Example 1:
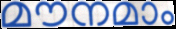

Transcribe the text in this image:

മൗനമാം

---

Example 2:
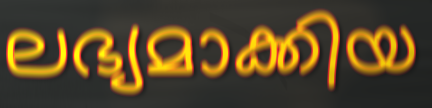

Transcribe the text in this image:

ലഭ്യമാക്കിയ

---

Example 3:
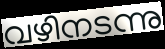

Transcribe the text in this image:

വഴിനടന്നു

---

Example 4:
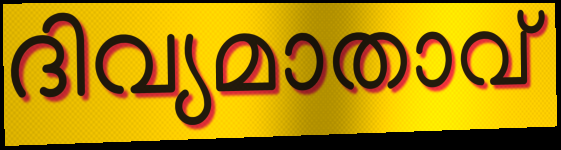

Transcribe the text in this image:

ദിവ്യമാതാവ്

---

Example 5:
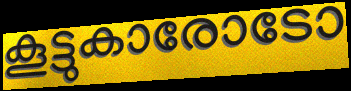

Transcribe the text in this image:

കൂട്ടുകാരോടോ